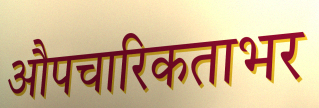
औपचारिकताभर